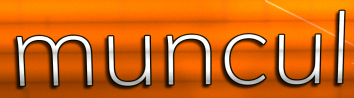
muncul